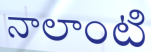
నాలాంటి